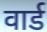
वार्ड